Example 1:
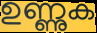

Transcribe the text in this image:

ഉണ്ണുക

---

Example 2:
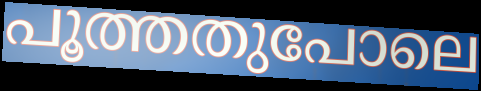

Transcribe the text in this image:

പൂത്തതുപോലെ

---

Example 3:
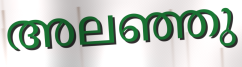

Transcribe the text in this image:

അലഞ്ഞു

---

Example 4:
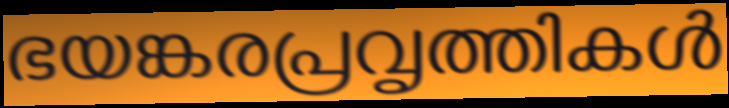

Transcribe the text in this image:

ഭയങ്കരപ്രവൃത്തികൾ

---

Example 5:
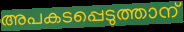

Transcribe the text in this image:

അപകടപ്പെടുത്താന്